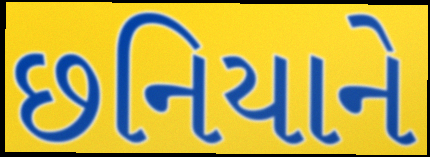
છનિયાને